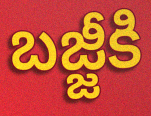
బజ్జీకి